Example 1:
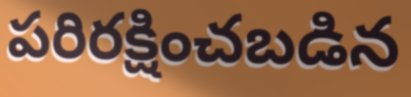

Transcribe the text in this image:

పరిరక్షించబడిన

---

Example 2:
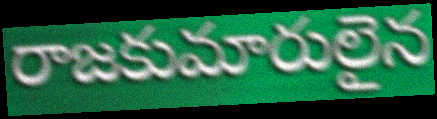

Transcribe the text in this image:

రాజకుమారులైన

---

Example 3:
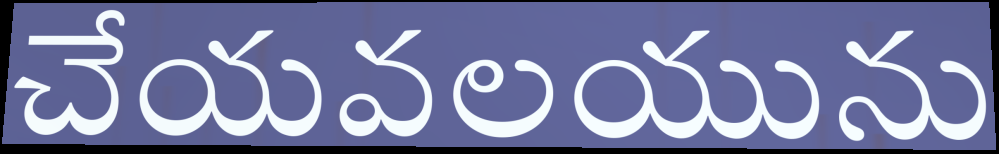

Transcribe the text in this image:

చేయవలయును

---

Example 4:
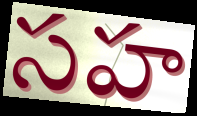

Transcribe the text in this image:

సహ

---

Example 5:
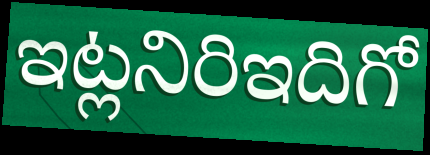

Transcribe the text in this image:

ఇట్లనిరిఇదిగో